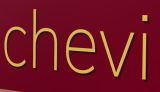
chevi